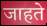
जाहते